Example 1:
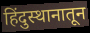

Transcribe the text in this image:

हिंदुस्थानातून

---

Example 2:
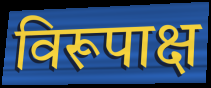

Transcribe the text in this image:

विरूपाक्ष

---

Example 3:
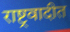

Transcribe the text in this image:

राष्ट्रवादीत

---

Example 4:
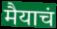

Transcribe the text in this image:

मैयाचं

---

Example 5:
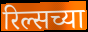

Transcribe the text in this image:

रिल्सच्या